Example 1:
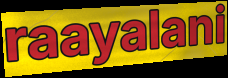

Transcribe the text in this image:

raayalani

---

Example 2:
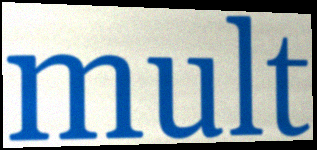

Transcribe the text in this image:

mult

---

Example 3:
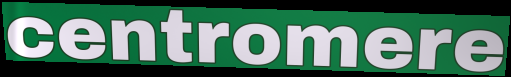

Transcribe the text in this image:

centromere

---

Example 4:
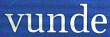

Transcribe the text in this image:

vunde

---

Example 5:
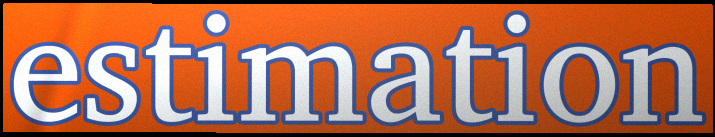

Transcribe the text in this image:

estimation